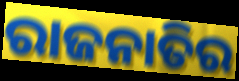
ରାଜନାତିର